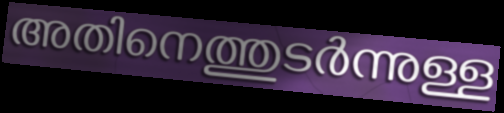
അതിനെത്തുടർന്നുള്ള